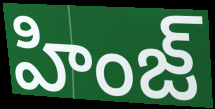
హింజ్